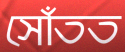
সোঁতত